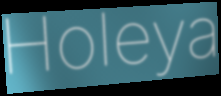
Holeya